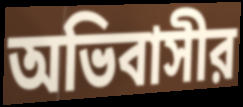
অভিবাসীর